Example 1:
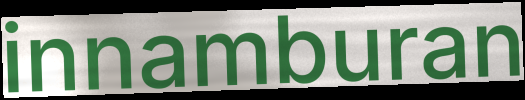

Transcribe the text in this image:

innamburan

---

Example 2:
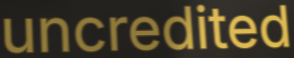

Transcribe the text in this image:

uncredited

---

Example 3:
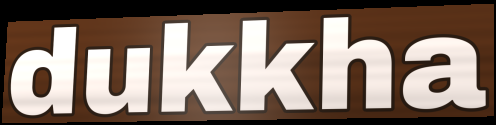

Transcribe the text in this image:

dukkha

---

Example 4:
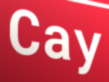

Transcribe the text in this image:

Cay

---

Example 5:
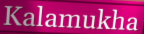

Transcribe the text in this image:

Kalamukha